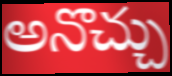
అనొచ్చు